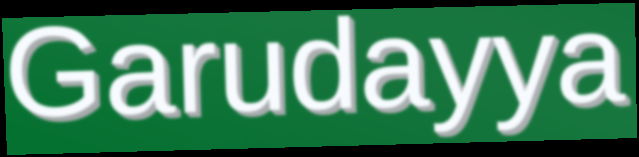
Garudayya